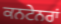
ਕਨਟੇਨਰਾਂ